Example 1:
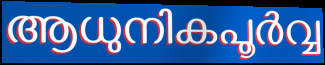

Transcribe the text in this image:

ആധുനികപൂർവ്വ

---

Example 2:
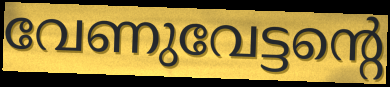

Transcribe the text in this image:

വേണുവേട്ടന്റെ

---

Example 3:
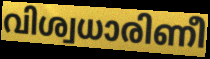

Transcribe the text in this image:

വിശ്വധാരിണീ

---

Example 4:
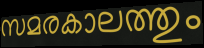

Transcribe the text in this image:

സമരകാലത്തും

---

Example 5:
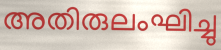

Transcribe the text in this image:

അതിരുലംഘിച്ചു